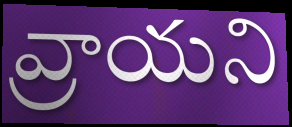
వ్రాయని